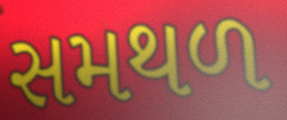
સમથળ